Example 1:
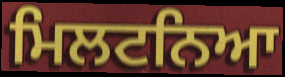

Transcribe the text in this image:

ਮਿਲਟਨਿਆ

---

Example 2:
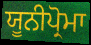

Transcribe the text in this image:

ਯੂਨੀਪ੍ਰੋਮਾ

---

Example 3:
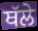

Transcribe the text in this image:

ਥੱਲੇ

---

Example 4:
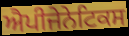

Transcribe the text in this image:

ਐਪੀਜੇਨੇਟਿਕਸ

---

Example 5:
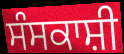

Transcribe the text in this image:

ਸੰਸਕਾਸ਼ੀ